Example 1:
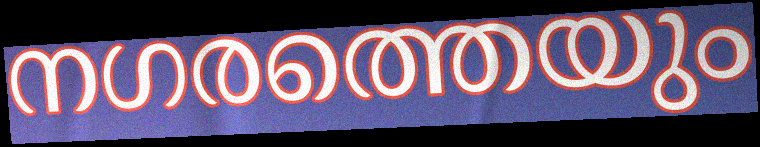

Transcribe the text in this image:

നഗരത്തെയും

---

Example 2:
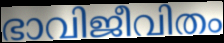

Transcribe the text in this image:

ഭാവിജീവിതം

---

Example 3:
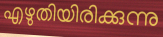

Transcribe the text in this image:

എഴുതിയിരിക്കുന്നു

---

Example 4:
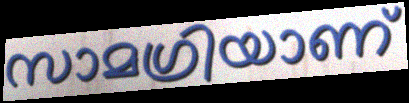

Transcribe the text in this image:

സാമഗ്രിയാണ്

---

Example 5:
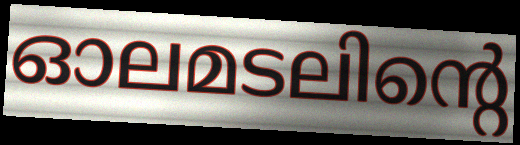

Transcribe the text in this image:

ഓലമടലിന്റെ